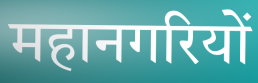
महानगरियों